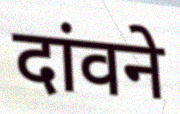
दांवने